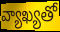
వ్యాఖ్యతో